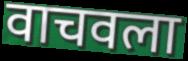
वाचवला